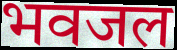
भवजल